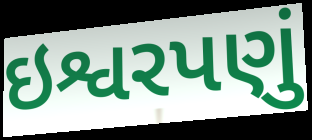
ઇશ્વરપણું